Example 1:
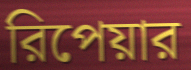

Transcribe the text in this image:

রিপেয়ার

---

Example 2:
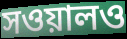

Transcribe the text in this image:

সওয়ালও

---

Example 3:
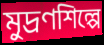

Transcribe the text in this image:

মুদ্রণশিল্পে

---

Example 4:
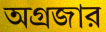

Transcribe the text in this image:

অগ্রজার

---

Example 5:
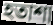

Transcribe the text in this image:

হতাশা